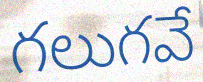
గలుగవే